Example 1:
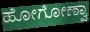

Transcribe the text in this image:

ಹೋಗೋಣ್ವಾ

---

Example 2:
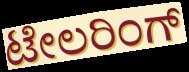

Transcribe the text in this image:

ಟೇಲರಿಂಗ್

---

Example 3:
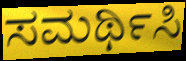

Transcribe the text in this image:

ಸಮರ್ಥಿಸಿ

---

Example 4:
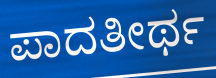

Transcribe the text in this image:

ಪಾದತೀರ್ಥ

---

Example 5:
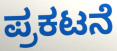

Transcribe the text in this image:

ಪ್ರಕಟನೆ